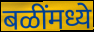
बळींमध्ये